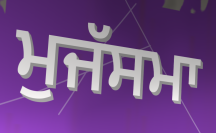
ਮੁਜੱਸਮਾ